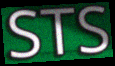
STS